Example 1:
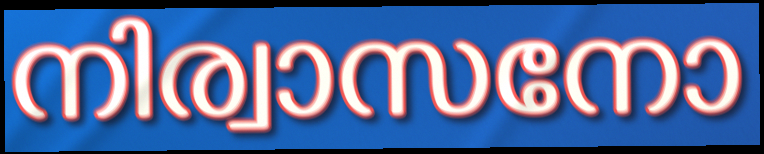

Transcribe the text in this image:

നിര്വാസനോ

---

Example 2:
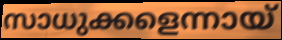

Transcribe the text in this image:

സാധുക്കളെന്നായ്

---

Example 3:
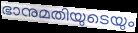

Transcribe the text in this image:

ഭാനുമതിയുടെയും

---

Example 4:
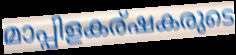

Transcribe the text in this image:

മാപ്പിളകര്ഷകരുടെ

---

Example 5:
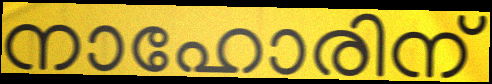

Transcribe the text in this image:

നാഹോരിന്